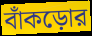
বাঁকড়োর